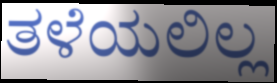
ತಳೆಯಲಿಲ್ಲ